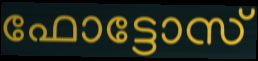
ഫോട്ടോസ്